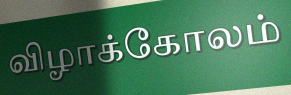
விழாக்கோலம்